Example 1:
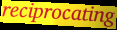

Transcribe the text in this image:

reciprocating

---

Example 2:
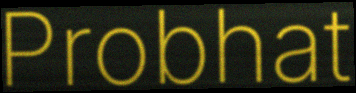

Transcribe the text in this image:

Probhat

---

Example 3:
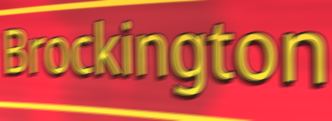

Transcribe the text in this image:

Brockington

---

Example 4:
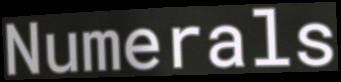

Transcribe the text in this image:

Numerals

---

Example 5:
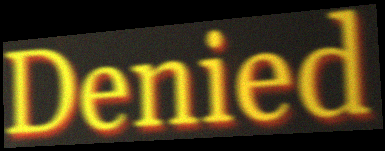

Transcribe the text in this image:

Denied